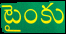
టైంకు